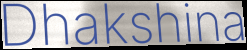
Dhakshina